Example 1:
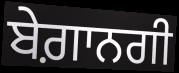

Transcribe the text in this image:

ਬੇਗ਼ਾਨਗੀ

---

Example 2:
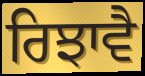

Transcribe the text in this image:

ਰਿਝਾਵੈ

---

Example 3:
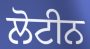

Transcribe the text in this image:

ਲੋਟੀਨ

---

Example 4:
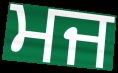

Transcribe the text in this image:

ਮਜ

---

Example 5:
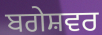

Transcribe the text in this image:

ਬਗੇਸ਼ਵਰ